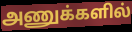
அணுக்களில்